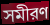
সমীরণ